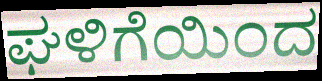
ಘಳಿಗೆಯಿಂದ